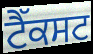
ਟੈੱਕਸਟ